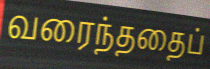
வரைந்ததைப்